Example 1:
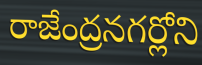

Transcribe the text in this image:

రాజేంద్రనగర్లోని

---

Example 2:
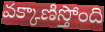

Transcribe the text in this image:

వక్కాణిస్తోంది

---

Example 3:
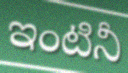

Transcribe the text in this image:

ఇంటినీ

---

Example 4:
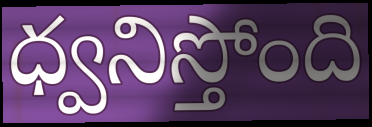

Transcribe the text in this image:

ధ్వనిస్తోంది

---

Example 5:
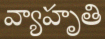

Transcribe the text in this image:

వ్యాహృతి